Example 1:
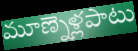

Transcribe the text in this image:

మూణ్నెళ్లపాటు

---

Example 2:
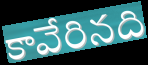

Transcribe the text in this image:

కావేరినది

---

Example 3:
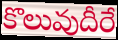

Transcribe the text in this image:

కొలువుదీరే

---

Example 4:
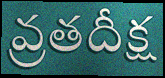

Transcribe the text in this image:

వ్రతదీక్ష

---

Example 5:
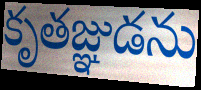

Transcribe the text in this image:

కృతజ్ఞుడను